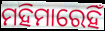
ମହିମାରେହିଁ